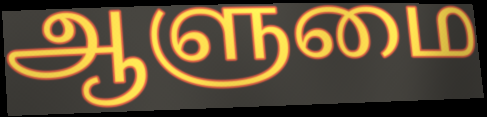
ஆளுமை